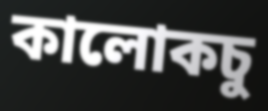
কালোকচু